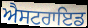
ਐਸਟਰਾਇਡ